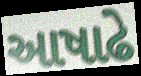
આષાઢે